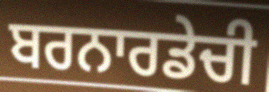
ਬਰਨਾਰਡੇਚੀ